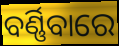
ବର୍ଣ୍ଣିବାରେ